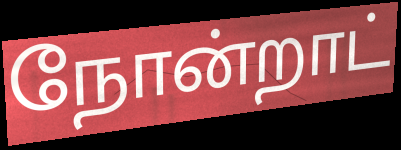
நோன்றாட்